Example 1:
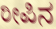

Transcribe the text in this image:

ರೀಪಿನ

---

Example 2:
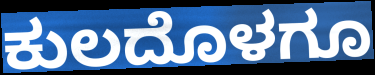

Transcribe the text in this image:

ಕುಲದೊಳಗೂ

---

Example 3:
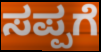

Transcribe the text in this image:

ಸಪ್ಪಗೆ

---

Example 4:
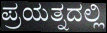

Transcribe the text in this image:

ಪ್ರಯತ್ನದಲ್ಲಿ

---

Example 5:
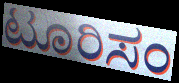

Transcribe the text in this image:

ಟೂರಿಸಂ